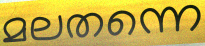
മലതന്നെ